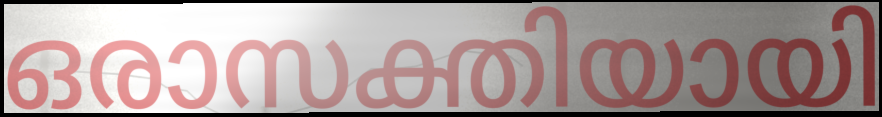
ഒരാസക്തിയായി